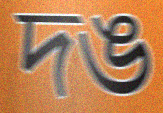
দঙ